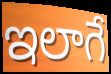
ఇలాగే